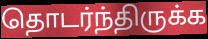
தொடர்ந்திருக்க